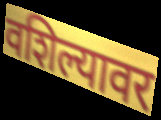
वशिल्यावर